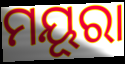
ମୟୂରା